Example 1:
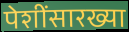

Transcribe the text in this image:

पेशींसारख्या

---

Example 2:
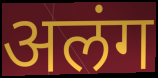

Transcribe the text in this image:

अलंग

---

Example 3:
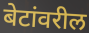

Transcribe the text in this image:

बेटांवरील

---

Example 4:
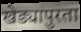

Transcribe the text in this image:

खेड्यापुरता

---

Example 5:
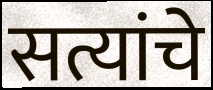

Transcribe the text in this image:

सत्यांचे